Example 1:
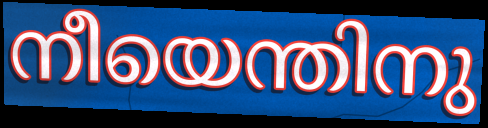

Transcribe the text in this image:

നീയെന്തിനു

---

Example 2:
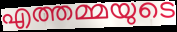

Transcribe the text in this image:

എത്തമ്മയുടെ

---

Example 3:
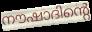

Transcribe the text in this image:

നൗഷാദിന്റെ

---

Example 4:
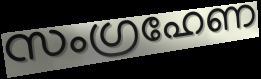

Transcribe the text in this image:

സംഗ്രഹേണ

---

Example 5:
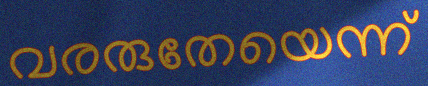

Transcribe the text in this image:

വരരുതേയെന്ന്